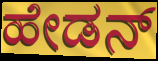
ಹೇಡನ್